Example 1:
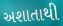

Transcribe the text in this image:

અશાતાથી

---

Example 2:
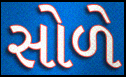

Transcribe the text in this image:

સોળે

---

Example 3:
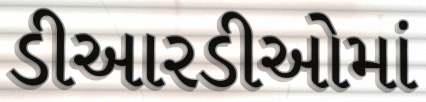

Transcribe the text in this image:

ડીઆરડીઓમાં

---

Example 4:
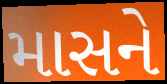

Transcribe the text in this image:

માસને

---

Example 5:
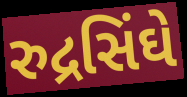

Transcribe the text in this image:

રુદ્રસિંઘે